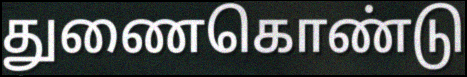
துணைகொண்டு